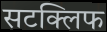
सटक्लिफ